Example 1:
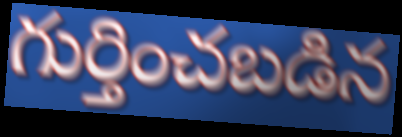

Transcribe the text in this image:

గుర్తించబడిన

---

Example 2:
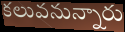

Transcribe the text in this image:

కలువనున్నారు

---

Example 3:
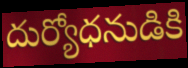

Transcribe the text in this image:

దుర్యోధనుడికి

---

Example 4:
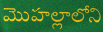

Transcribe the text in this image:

మొహల్లాలోని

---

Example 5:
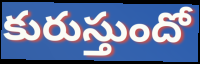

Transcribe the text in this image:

కురుస్తుందో